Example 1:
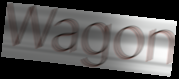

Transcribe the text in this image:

Wagon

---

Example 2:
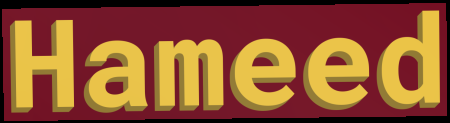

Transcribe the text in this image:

Hameed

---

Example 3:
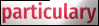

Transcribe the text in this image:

particulary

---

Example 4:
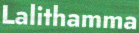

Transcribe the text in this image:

Lalithamma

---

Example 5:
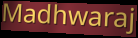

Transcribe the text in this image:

Madhwaraj